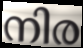
നിര